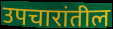
उपचारांतील